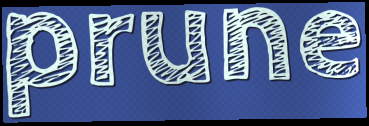
prune